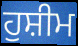
ਹੁਸ਼ੀਮ